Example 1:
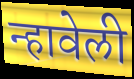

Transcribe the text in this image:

न्हावेली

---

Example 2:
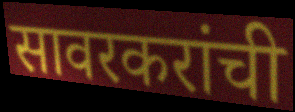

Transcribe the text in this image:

सावरकरांची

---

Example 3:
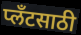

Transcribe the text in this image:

प्लँटसाठी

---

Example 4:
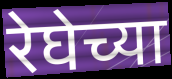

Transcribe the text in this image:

रेघेच्या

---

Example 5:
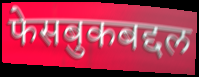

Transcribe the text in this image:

फेसबुकबद्दल